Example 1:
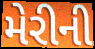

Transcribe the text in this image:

મેરીની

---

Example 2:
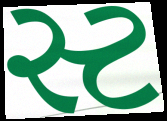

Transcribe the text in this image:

સ્ટ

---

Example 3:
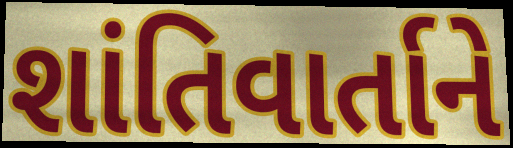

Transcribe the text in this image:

શાંતિવાર્તાને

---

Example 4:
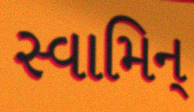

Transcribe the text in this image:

સ્વામિન્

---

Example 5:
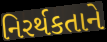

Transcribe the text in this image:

નિરર્થકતાને